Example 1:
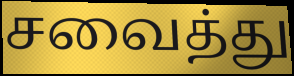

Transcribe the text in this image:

சவைத்து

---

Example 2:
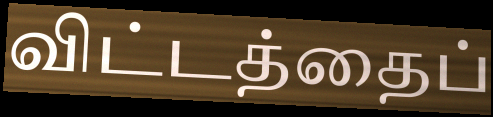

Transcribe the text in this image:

விட்டத்தைப்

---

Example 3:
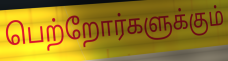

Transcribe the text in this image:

பெற்றோர்களுக்கும்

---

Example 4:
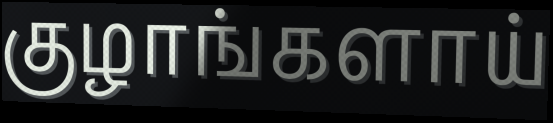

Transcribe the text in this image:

குழாங்களாய்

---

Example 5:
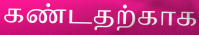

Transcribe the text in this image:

கண்டதற்காக